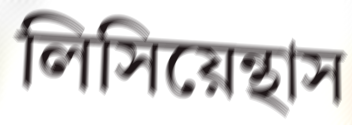
লিসিয়েন্থাস